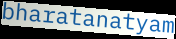
bharatanatyam